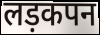
लड़कपन